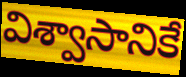
విశ్వాసానికే